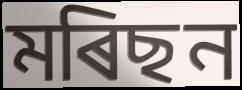
মৰিছন